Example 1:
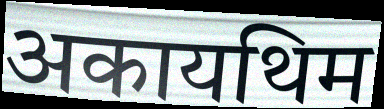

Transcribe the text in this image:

अकायथिम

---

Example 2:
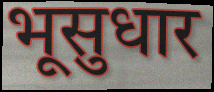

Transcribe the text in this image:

भूसुधार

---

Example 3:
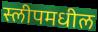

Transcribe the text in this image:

स्लीपमधील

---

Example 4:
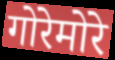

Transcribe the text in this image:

गोरेमोरे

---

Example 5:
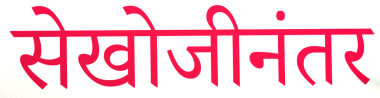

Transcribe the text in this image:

सेखोजीनंतर